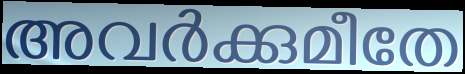
അവർക്കുമീതേ